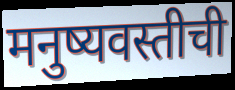
मनुष्यवस्तीची